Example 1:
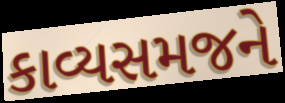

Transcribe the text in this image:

કાવ્યસમજને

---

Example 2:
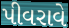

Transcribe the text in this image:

પીવરાવે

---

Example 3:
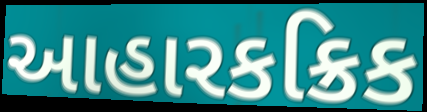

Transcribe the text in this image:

આહારકક્રિક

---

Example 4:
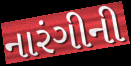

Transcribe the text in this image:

નારંગીની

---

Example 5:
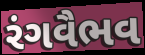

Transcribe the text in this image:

રંગવૈભવ